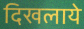
दिखलाये